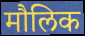
मौलिक